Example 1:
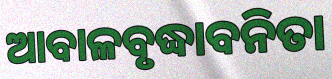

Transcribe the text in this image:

ଆବାଳବୃଦ୍ଧାବନିତା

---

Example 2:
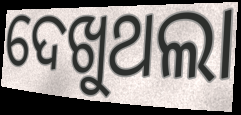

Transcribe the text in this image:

ଦେଖୁଥଲା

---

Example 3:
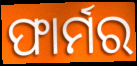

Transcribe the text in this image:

ଫାର୍ମର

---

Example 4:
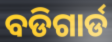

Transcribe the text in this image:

ବଡିଗାର୍ଡ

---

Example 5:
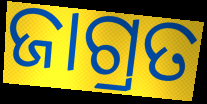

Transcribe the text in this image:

ଜାଗ୍ରତ